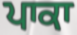
ਪਾਕਾ